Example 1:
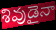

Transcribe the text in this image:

శివుడైనా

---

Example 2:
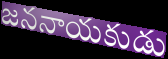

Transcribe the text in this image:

జననాయకుడు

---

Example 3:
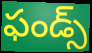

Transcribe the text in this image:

ఫండ్స్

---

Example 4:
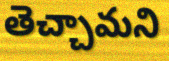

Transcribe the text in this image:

తెచ్చామని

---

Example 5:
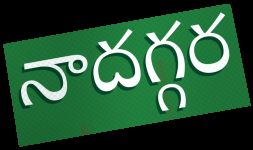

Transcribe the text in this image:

నాదగ్గర